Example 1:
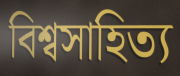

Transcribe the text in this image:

বিশ্বসাহিত্য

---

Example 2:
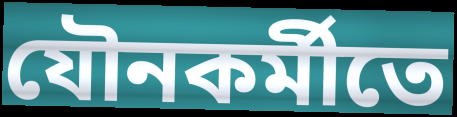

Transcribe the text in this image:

যৌনকর্মীতে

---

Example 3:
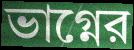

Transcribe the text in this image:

ভাগ্নের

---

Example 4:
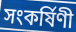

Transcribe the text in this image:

সংকর্ষিণী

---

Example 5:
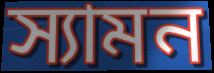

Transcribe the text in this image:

স্যামন